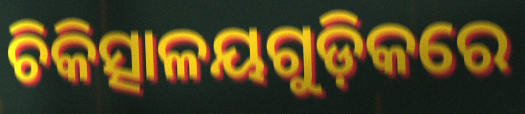
ଚିକିତ୍ସାଳୟଗୁଡ଼ିକରେ